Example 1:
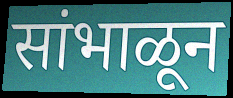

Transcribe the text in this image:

सांभाळून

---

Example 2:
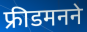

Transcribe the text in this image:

फ्रीडमनने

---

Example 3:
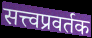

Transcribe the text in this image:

सत्त्वप्रवर्तक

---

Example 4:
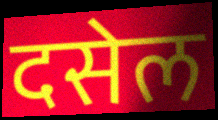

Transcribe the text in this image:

दसेल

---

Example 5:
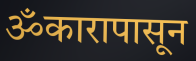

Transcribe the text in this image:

ॐकारापासून